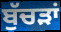
ਬੁੱਚੜਾਂ